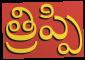
త్రిప్పి